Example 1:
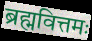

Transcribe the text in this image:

ब्रह्मवित्तमः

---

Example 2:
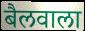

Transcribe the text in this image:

बैलवाला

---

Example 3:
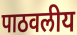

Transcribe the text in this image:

पाठवलीय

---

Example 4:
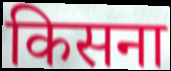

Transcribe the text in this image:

किसना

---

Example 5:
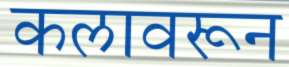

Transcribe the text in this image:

कलावरून